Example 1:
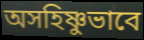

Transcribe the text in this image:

অসহিষ্ণুভাবে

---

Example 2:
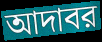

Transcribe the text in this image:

আদাবর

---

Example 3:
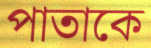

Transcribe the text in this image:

পাতাকে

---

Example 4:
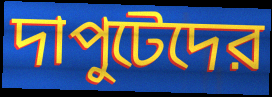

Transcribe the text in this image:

দাপুটেদের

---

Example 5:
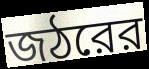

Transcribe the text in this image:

জঠরের